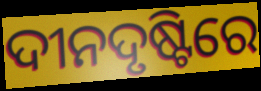
ଦୀନଦୃଷ୍ଟିରେ